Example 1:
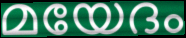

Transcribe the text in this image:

മയേദം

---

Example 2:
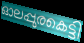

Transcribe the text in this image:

ഓലപ്പുരകെട്ടി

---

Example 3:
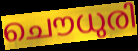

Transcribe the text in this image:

ചൌധുരി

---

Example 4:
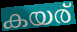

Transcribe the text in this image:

കയര്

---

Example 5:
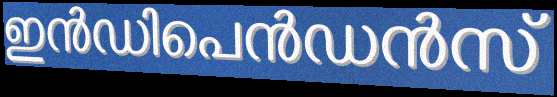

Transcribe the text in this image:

ഇൻഡിപെൻഡൻസ്